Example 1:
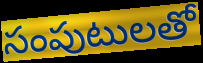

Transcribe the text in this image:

సంపుటులతో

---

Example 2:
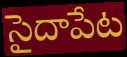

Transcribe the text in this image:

సైదాపేట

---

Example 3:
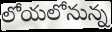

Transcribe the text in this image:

లోయలోనున్న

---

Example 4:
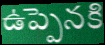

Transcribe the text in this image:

ఉప్పెనకి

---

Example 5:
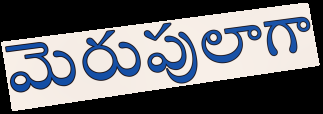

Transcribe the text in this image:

మెరుపులాగా